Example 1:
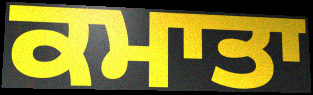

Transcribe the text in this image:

ਕਮਾਤਾ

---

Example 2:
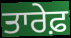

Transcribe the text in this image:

ਤਾਰੇਫ਼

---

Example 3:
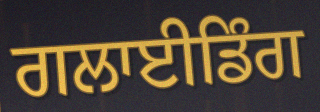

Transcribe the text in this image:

ਗਲਾਈਡਿੰਗ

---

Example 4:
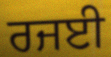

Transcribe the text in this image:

ਰਜਈ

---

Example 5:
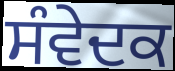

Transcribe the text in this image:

ਸੰਵੇਦਕ